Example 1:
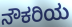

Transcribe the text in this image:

ನೌಕರಿಯ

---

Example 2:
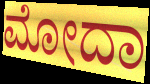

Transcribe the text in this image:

ಮೋದಾ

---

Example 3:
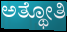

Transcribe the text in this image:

ಅತ್ಥೋತಿ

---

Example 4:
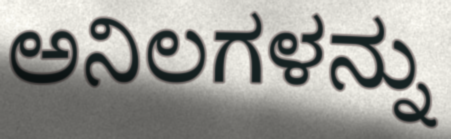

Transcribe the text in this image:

ಅನಿಲಗಳನ್ನು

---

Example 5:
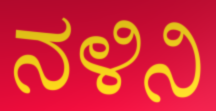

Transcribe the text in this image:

ನಳಿನಿ